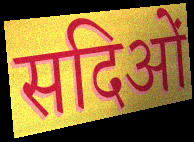
सदिओं